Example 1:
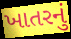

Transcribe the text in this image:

ખાતરનું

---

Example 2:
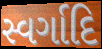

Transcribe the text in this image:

સ્વર્ગાદિ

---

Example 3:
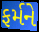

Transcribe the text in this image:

ફર્મને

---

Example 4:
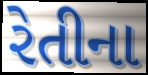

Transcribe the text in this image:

રેતીના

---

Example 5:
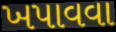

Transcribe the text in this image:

ખપાવવા